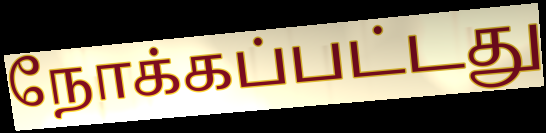
நோக்கப்பட்டது